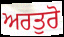
ਅਰਤੁਰੋ